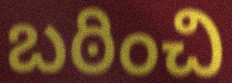
బఠించి